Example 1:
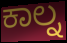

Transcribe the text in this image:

ಕಾಲ್ನ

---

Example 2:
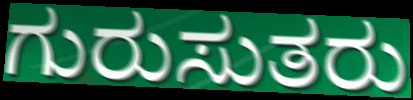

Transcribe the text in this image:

ಗುರುಸುತರು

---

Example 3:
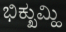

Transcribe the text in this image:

ಭಿಕ್ಖುಮ್ಹಿ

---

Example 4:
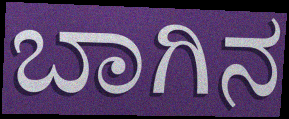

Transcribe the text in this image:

ಬಾಗಿನ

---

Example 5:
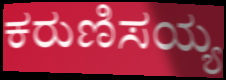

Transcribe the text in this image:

ಕರುಣಿಸಯ್ಯ